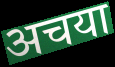
अचया